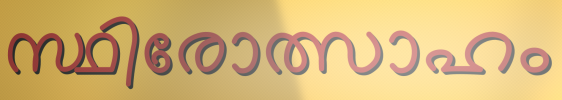
സ്ഥിരോത്സാഹം